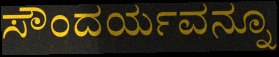
ಸೌಂದರ್ಯವನ್ನೂ